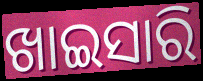
ଖାଇସାରି